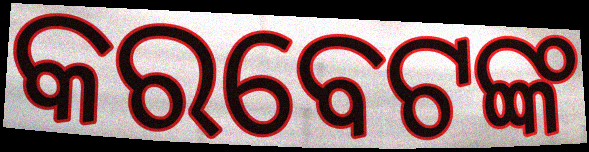
କରବେଟଙ୍କ